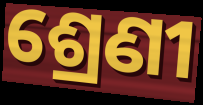
ଶ୍ରେଣୀ